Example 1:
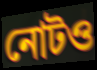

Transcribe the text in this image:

নোটও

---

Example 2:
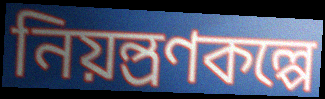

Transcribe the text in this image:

নিয়ন্ত্রণকল্পে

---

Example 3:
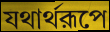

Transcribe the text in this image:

যথার্থরূপে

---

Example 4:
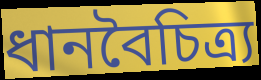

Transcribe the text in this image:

ধানবৈচিত্র্য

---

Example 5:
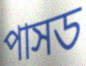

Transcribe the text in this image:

পাসড